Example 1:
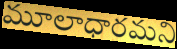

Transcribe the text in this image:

మూలాధారమని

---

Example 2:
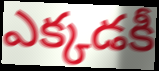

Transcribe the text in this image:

ఎక్కడకీ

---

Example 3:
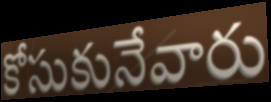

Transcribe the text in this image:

కోసుకునేవారు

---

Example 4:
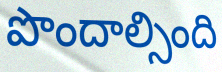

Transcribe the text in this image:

పొందాల్సింది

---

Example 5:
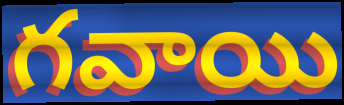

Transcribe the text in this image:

గవాయి